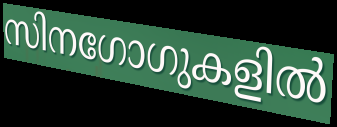
സിനഗോഗുകളിൽ